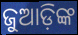
ଜୁଆଡ଼ିଙ୍କ